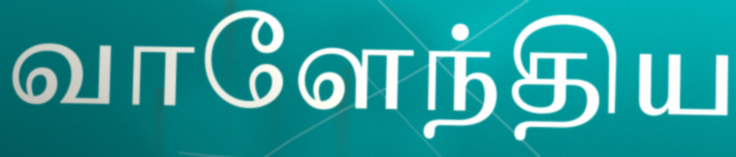
வாளேந்திய